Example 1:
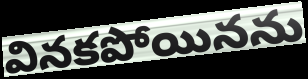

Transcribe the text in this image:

వినకపోయినను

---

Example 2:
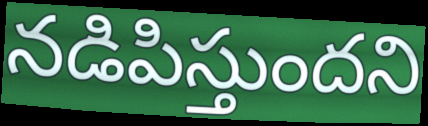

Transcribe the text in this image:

నడిపిస్తుందని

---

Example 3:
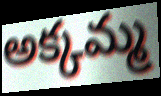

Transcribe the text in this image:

అక్కమ్మ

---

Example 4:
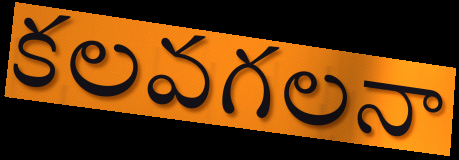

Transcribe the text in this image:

కలవగలనా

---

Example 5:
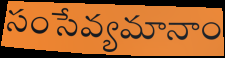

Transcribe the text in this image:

సంసేవ్యమానాం